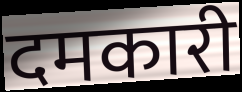
दमकारी